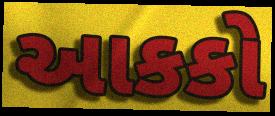
આકકો